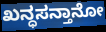
ಖನ್ಧಸನ್ತಾನೋ